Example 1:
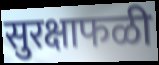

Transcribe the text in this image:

सुरक्षाफळी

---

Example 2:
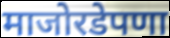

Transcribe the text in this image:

माजोरडेपणा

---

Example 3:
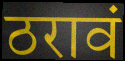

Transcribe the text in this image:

ठरावं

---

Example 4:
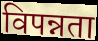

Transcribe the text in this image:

विपन्नता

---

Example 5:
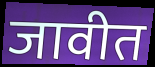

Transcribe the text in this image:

जावीत